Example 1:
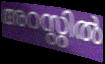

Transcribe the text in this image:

അറസ്റ്റിൽ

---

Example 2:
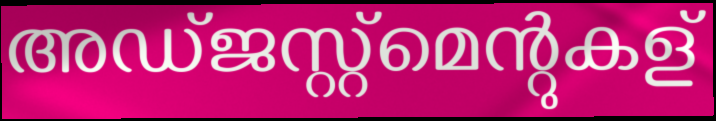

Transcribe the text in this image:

അഡ്ജസ്റ്റ്മെന്റുകള്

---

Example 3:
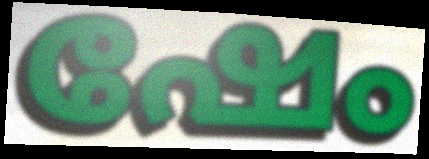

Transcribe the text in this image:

ഷേം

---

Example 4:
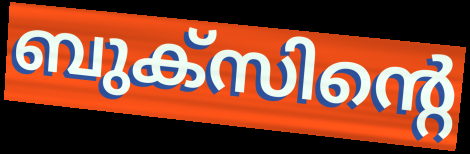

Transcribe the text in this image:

ബുക്സിന്റെ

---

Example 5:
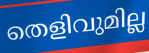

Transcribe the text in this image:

തെളിവുമില്ല